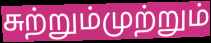
சுற்றும்முற்றும்